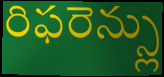
రిఫరెన్స్లు